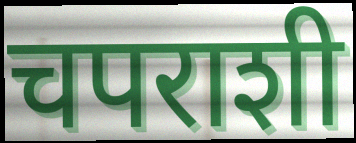
चपराशी